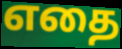
எதை